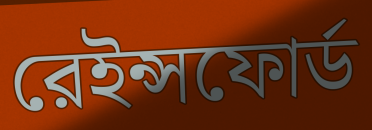
রেইন্সফোর্ড